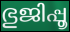
ഭുജിപ്പൂ